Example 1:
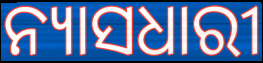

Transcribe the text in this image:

ନ୍ୟାସଧାରୀ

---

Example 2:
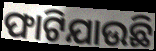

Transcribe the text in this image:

ଫାଟିଯାଉଛି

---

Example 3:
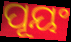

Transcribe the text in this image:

ପୂୟଂ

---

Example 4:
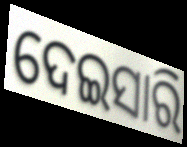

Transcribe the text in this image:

ଦେଇସାରି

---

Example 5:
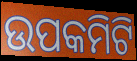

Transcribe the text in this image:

ଉପକମିଟି